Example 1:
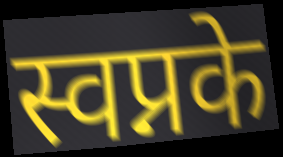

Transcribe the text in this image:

स्वप्नके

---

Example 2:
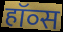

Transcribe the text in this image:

हॉव्स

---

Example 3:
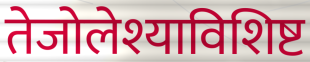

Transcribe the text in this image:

तेजोलेश्याविशिष्ट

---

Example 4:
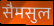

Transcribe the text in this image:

सैमसुल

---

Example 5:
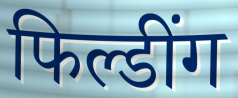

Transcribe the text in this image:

फिल्डींग